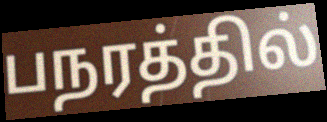
பநரத்தில்